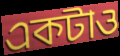
একটাও